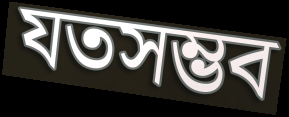
যতসম্ভব